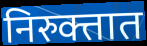
निरुक्तात